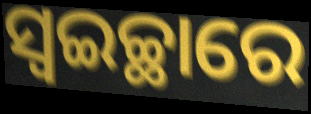
ସ୍ଵଇଚ୍ଛାରେ